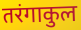
तरंगाकुल